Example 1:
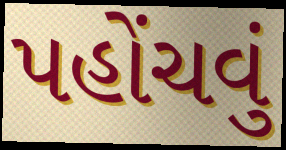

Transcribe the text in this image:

પહોંચવું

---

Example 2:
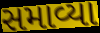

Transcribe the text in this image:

સમાવ્યા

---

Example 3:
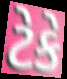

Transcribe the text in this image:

ટેકે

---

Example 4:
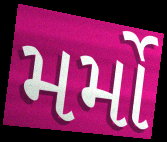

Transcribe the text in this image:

મર્મો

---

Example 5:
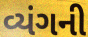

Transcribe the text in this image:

વ્યંગની